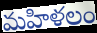
మహిళలం